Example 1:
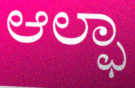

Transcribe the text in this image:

ಆಲ್ಫಾ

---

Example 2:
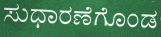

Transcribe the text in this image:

ಸುಧಾರಣೆಗೊಂಡ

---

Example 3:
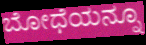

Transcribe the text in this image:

ಬೋಧೆಯನ್ನೂ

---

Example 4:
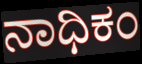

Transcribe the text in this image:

ನಾಧಿಕಂ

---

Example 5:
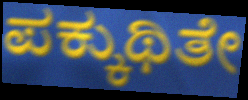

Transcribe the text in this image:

ಪಕ್ಕುಥಿತೇ